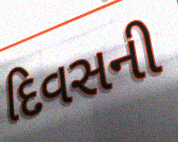
દિવસની